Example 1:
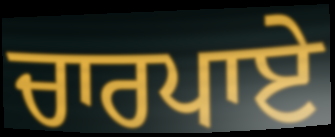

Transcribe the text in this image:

ਚਾਰਪਾਏ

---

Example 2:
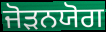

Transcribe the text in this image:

ਜੋੜਨਯੋਗ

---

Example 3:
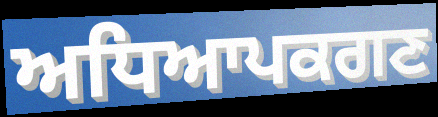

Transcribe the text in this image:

ਅਧਿਆਪਕਗਣ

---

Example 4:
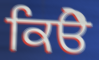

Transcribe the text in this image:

ਕਿੳੇ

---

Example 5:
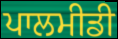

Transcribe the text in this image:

ਪਾਲਮੀਡੀ